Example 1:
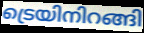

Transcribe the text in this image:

ട്രെയിനിറങ്ങി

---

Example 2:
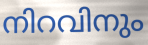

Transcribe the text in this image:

നിറവിനും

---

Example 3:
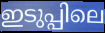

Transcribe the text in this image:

ഇടുപ്പിലെ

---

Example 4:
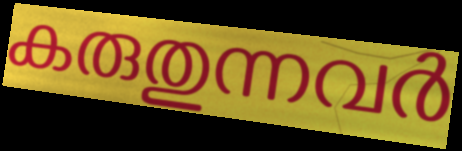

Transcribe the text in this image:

കരുതുന്നവർ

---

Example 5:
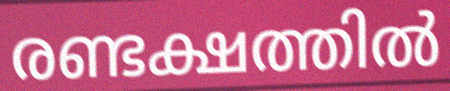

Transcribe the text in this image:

രണ്ടക്ഷത്തിൽ